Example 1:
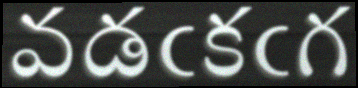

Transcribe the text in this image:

వడఁకఁగ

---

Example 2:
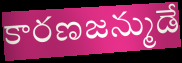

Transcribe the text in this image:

కారణజన్ముడే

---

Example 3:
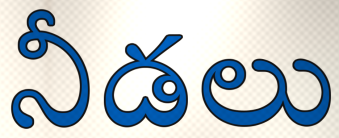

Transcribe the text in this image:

నీడలు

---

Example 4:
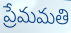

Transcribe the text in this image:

ప్రేమమతి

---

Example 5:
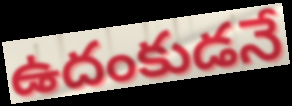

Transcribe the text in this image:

ఉదంకుడనే